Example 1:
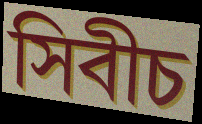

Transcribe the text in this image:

সিবীচ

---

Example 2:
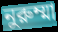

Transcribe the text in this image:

নুরুম্মা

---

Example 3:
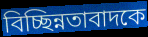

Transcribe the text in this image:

বিচ্ছিন্নতাবাদকে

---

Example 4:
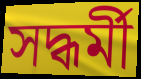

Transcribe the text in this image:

সদ্ধর্মী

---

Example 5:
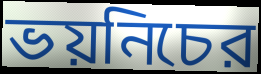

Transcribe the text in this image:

ভয়নিচের